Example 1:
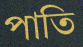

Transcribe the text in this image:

পাতি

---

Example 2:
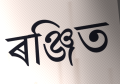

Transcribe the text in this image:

ৰঞ্জিত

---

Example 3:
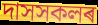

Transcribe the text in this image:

দাসসকলৰ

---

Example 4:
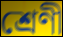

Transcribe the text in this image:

শ্ৰেণী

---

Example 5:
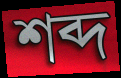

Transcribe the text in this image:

শব্দ